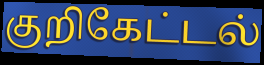
குறிகேட்டல்